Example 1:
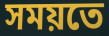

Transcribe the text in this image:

সময়তে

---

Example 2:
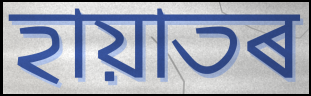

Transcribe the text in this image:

হায়াতৰ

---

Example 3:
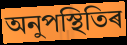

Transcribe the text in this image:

অনুপস্থিতিৰ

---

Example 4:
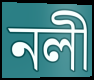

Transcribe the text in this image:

নলী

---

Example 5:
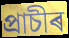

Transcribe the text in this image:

প্ৰাচীৰ